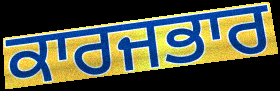
ਕਾਰਜਭਾਰ